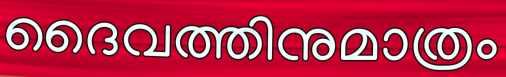
ദൈവത്തിനുമാത്രം